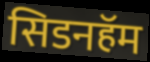
सिडनहॅम